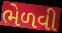
ભેળવી